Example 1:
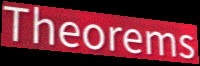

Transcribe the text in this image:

Theorems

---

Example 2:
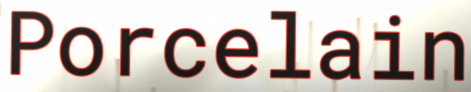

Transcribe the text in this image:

Porcelain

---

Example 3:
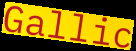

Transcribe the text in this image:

Gallic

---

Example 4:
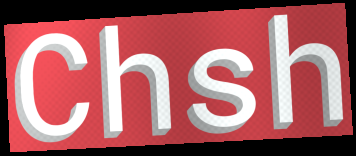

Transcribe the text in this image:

Chsh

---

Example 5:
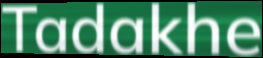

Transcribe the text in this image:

Tadakhe